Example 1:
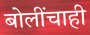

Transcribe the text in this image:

बोलींचाही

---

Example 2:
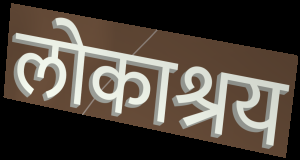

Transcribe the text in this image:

लोकाश्रय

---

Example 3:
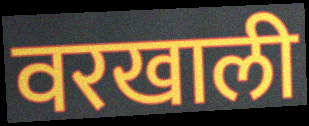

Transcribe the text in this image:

वरखाली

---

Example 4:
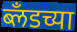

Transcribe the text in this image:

ब्लँडच्या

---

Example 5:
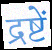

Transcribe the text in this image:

द्रष्टें